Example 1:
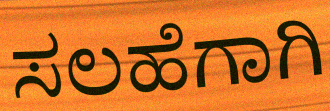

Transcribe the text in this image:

ಸಲಹೆಗಾಗಿ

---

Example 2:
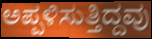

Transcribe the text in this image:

ಅಪ್ಪಳಿಸುತ್ತಿದ್ದವು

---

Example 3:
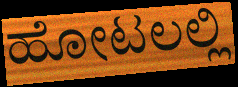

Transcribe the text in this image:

ಹೋಟಲಲ್ಲಿ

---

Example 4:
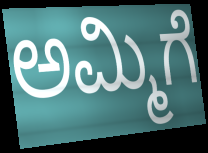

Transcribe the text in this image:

ಅಮ್ಮಿಗೆ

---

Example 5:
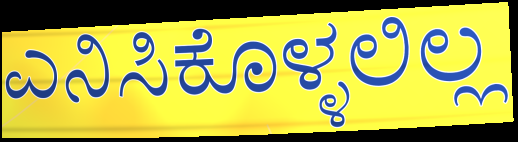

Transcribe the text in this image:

ಎನಿಸಿಕೊಳ್ಳಲಿಲ್ಲ